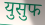
युसुफ